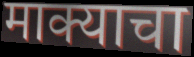
माक्याचा